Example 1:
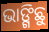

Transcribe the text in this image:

ଭାଙ୍ଗିଛୁ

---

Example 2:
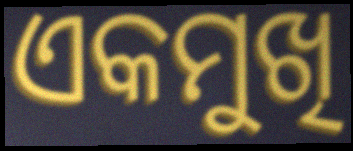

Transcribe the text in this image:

ଏକମୁଖି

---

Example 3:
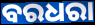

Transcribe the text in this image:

ବରଧରା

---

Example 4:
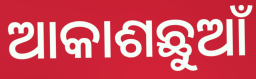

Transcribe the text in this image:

ଆକାଶଛୁଆଁ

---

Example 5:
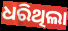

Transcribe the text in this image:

ଧରିଥିଲା